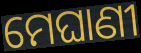
ମେଘାଣୀ